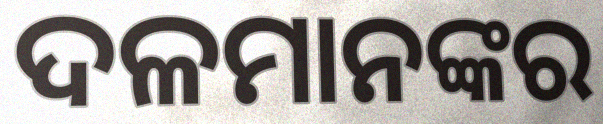
ଦଳମାନଙ୍କର